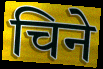
चिने